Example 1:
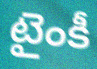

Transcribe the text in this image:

టైంకీ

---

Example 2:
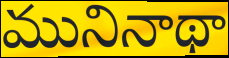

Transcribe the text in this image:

మునినాథా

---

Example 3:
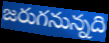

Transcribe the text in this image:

జరుగనున్నది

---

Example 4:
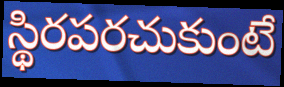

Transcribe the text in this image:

స్థిరపరచుకుంటే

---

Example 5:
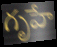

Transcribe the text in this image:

గృహే